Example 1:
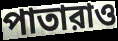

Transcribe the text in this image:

পাতারাও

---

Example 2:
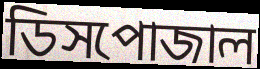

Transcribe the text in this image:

ডিসপোজাল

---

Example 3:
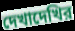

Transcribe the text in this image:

দেখাদেখির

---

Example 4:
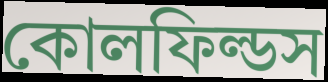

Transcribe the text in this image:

কোলফিল্ডস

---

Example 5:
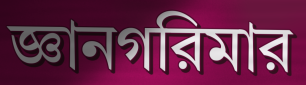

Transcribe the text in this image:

জ্ঞানগরিমার